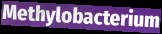
Methylobacterium